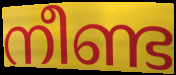
നീണ്ട